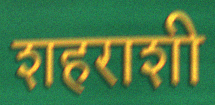
शहराशी